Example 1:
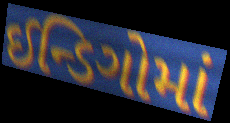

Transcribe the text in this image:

ઈન્ડિગોમાં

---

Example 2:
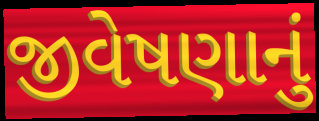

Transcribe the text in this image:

જીવેષણાનું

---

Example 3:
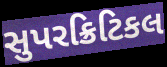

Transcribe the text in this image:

સુપરક્રિટિકલ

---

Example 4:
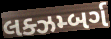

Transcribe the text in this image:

લક્ઝમ્બર્ગ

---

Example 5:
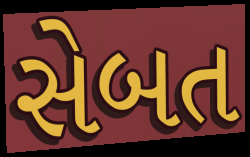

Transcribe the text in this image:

સેબત